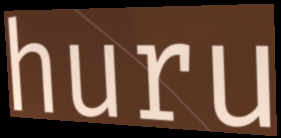
huru